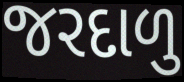
જરદાળુ